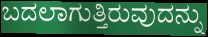
ಬದಲಾಗುತ್ತಿರುವುದನ್ನು